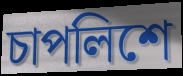
চাপলিশে